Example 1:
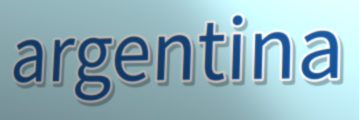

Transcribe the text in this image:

argentina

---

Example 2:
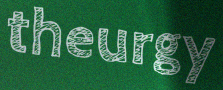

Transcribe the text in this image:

theurgy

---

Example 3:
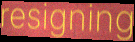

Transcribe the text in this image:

resigning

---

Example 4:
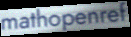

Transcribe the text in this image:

mathopenref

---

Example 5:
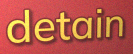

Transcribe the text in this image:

detain